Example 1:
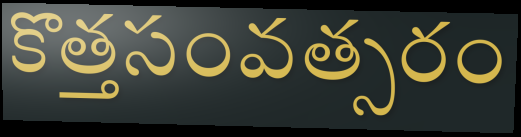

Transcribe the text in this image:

కొత్తసంవత్సరం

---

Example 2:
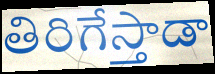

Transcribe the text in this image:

తిరిగేస్తాడా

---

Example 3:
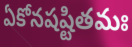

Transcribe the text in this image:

ఏకోనషష్టితమః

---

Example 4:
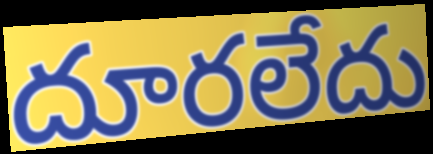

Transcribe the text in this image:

దూరలేదు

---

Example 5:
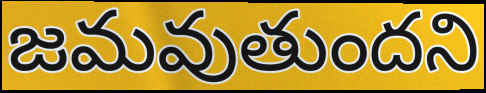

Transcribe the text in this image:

జమవుతుందని